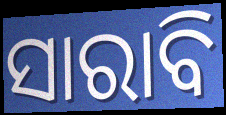
ସାରାବି